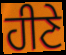
ਹੀਣੇ